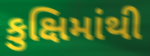
કુક્ષિમાંથી